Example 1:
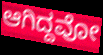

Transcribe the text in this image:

ಆಗಿದ್ದವೋ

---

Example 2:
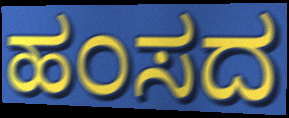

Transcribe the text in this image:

ಹಂಸದ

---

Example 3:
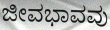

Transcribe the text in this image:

ಜೀವಭಾವವು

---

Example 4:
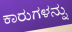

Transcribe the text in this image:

ಕಾರುಗಳನ್ನು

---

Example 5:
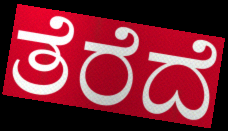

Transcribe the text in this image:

ತೆರೆದೆ